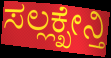
ಸಲ್ಲಕ್ಖೇನ್ತಿ